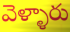
వెళ్ళారు